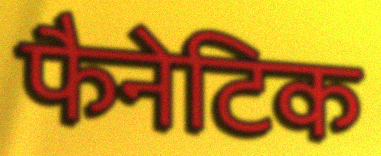
फैनेटिक